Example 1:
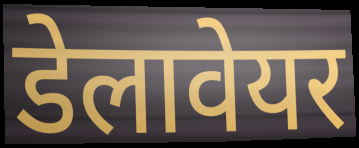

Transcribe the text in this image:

डेलावेयर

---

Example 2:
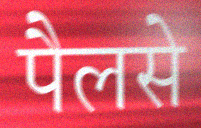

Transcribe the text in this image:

पैलसे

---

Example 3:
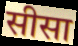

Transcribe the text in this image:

सीसा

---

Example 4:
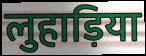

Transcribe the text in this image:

लुहाड़िया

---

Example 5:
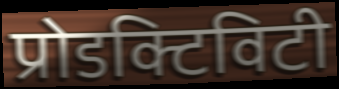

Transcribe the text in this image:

प्रोडक्टिविटी